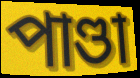
পাণ্ডা